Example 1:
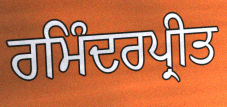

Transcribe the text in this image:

ਰਮਿੰਦਰਪ੍ਰੀਤ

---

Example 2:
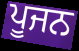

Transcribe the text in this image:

ਪੂਜਨ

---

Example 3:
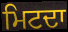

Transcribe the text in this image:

ਮਿਟਦਾ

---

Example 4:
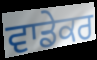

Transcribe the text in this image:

ਵਾਡੇਕਰ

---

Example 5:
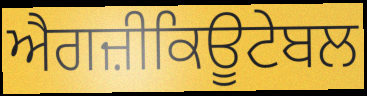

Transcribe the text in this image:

ਐਗਜ਼ੀਕਿਊਟੇਬਲ